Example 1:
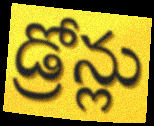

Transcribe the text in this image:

డ్రోన్లు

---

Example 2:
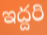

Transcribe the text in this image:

ఇద్దరి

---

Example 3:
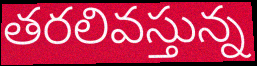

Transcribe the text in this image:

తరలివస్తున్న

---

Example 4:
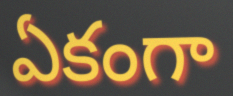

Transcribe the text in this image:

ఏకంగా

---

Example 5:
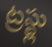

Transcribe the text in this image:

ట్రస్ట్లు